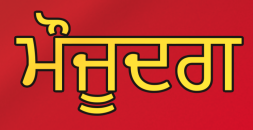
ਮੌਜੂਦਗ